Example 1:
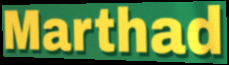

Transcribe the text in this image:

Marthad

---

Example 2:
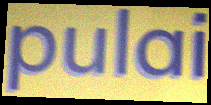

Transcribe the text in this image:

pulai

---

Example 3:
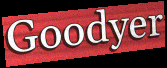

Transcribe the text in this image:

Goodyer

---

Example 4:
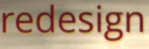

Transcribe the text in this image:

redesign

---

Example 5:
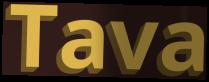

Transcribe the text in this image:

Tava